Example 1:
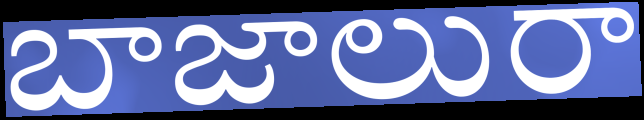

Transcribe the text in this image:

బాజాలురా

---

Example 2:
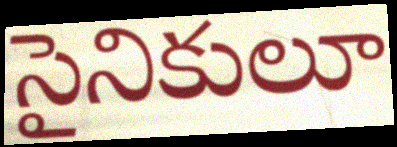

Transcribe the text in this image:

సైనికులూ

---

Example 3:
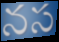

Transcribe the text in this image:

నస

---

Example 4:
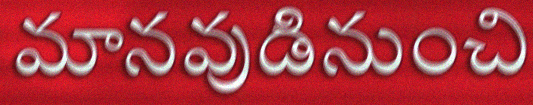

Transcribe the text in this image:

మానవుడినుంచి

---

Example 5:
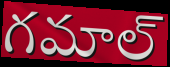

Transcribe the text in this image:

గమాల్